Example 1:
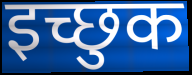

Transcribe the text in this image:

इच्छुक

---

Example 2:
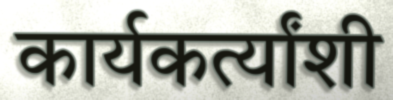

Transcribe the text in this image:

कार्यकर्त्यांशी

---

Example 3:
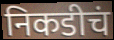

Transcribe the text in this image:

निकडीचं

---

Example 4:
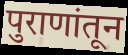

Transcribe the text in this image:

पुराणांतून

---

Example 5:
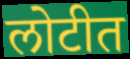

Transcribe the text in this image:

लोटीत